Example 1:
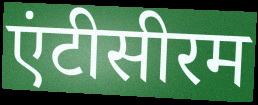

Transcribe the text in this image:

एंटीसीरम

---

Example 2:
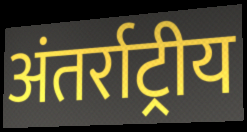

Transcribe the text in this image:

अंतर्राट्रीय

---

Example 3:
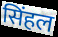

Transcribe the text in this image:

सिंहल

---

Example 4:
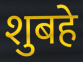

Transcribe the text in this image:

शुबहे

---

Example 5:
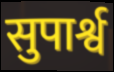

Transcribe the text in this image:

सुपार्श्व